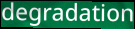
degradation